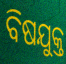
ବିଷଯୁକ୍ତ